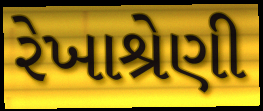
રેખાશ્રેણી